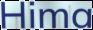
Hima